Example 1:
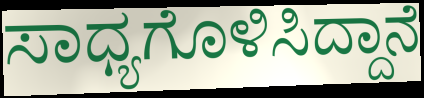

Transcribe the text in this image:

ಸಾಧ್ಯಗೊಳಿಸಿದ್ದಾನೆ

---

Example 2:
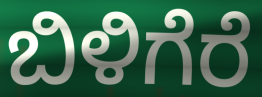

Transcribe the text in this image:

ಬಿಳಿಗೆರೆ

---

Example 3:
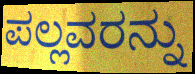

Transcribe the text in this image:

ಪಲ್ಲವರನ್ನು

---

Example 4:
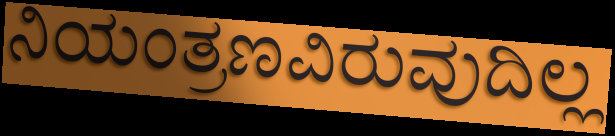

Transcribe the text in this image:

ನಿಯಂತ್ರಣವಿರುವುದಿಲ್ಲ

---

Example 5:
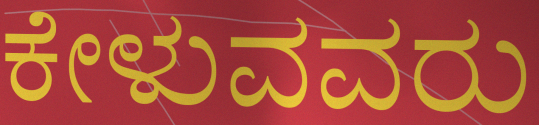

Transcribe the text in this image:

ಕೇಳುವವರು